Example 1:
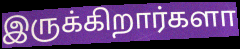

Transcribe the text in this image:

இருக்கிறார்களா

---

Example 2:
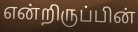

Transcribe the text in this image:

என்றிருப்பின்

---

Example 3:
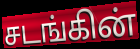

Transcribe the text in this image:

சடங்கின்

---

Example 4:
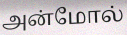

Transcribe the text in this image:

அன்மோல்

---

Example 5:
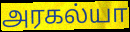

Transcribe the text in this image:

அரகல்யா